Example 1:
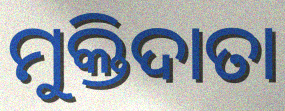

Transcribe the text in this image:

ମୁକ୍ତିଦାତା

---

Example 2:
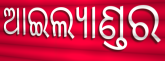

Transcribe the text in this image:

ଆଇଲ୍ୟାଣ୍ଡର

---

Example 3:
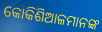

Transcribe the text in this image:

କୋକିଶିଆଳମାନଙ୍କ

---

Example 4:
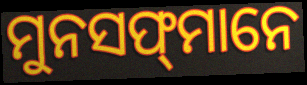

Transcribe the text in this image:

ମୁନସଫ୍‍ମାନେ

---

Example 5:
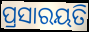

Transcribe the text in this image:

ପ୍ରସାରୟତି